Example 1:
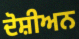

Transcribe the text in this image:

ਦੋਸ਼ੀਅਨ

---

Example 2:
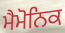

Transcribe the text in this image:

ਮੈਮੋਨਿਕ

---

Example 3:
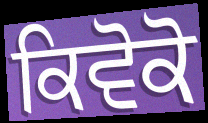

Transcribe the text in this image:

ਕਿਵੋਕੋ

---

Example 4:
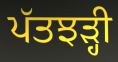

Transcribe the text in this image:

ਪੱਤਝੜ੍ਹੀ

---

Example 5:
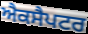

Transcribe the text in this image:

ਐਕਸੈਪਟਰ